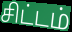
சிட்டம்